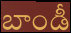
బాండీ